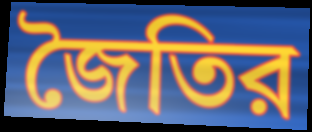
জৈতির